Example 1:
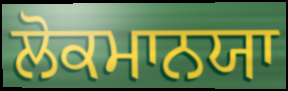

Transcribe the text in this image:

ਲੋਕਮਾਨਯਾ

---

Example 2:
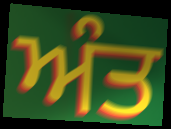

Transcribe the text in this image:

ਅੰਤ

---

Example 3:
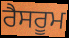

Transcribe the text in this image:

ਰੈਸਰੂਮ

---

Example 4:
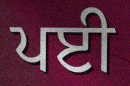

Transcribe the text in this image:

ਪਈ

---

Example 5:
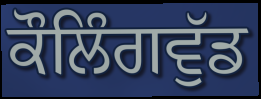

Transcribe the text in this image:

ਕੌਲਿੰਗਵੁੱਡ